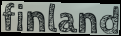
finland